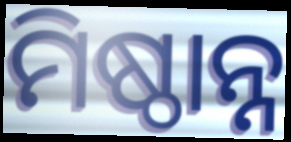
ମିଷ୍ଠାନ୍ନ